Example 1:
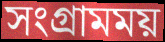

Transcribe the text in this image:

সংগ্রামময়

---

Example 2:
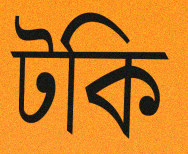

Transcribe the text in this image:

টকি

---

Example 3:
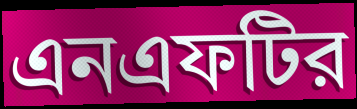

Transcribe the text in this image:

এনএফটির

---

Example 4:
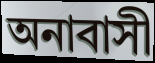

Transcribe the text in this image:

অনাবাসী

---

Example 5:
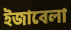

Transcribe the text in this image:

ইজাবেলা